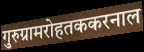
गुरुग्रामरोहतककरनाल